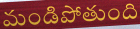
మండిపోతుంది